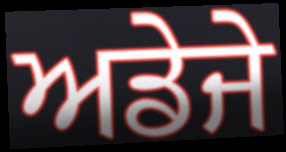
ਅਡੇਜੇ